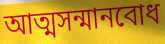
আত্মসন্মানবোধ